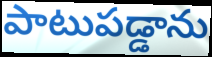
పాటుపడ్డాను